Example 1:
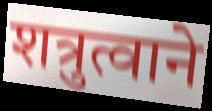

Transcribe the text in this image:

शत्रुत्वाने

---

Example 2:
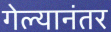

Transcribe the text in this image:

गेल्यानंतर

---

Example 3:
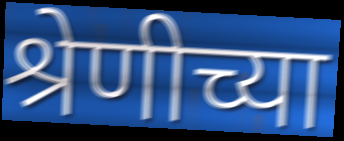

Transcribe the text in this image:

श्रेणीच्या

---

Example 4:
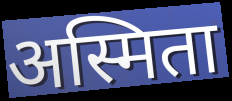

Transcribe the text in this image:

अस्मिता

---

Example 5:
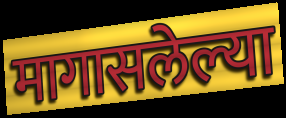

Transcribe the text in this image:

मागासलेल्या